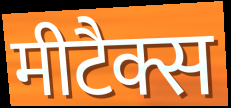
मीटैक्स